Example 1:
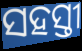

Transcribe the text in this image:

ସହସ୍ତୀ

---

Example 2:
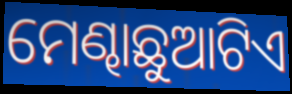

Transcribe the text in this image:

ମେଣ୍ଢାଛୁଆଟିଏ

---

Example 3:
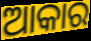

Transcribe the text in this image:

ଆକାର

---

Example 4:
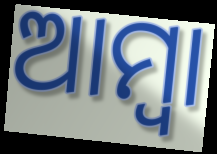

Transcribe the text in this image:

ଆମ୍ବା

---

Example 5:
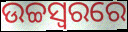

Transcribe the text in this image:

ଉଚ୍ଚସ୍ୱରରେ